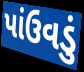
પાંઉવડું